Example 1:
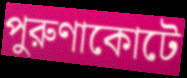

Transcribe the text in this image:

পুরুণাকোটে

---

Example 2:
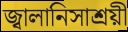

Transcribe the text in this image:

জ্বালানিসাশ্রয়ী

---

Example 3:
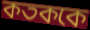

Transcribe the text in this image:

কতককে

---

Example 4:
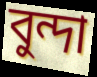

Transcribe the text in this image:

বুন্দা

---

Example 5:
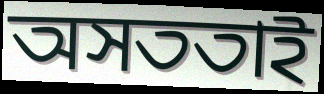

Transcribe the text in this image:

অসততাই